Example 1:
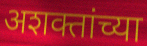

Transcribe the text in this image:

अशक्तांच्या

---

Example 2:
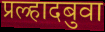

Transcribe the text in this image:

प्रल्हादबुवा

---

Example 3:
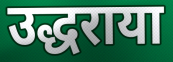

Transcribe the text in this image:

उद्धराया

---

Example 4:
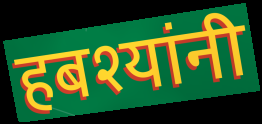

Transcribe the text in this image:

हबश्यांनी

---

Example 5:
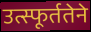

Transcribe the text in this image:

उत्स्फूर्ततेने